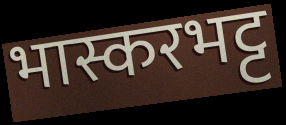
भास्करभट्ट